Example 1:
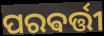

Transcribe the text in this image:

ପରଵର୍ତ୍ତୀ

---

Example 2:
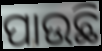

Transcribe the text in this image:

ପାଉଛି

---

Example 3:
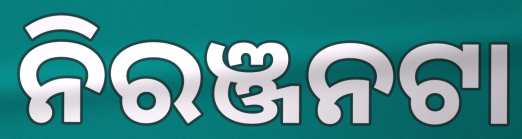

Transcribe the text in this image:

ନିରଞ୍ଜନଟା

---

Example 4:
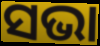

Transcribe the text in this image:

ସଭା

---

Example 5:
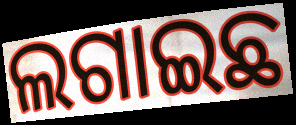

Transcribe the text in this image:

ଲଗାଇଛ